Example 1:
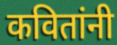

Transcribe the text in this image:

कवितांनी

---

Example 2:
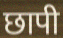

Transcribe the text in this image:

छापी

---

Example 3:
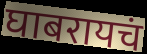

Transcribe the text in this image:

घाबरायचं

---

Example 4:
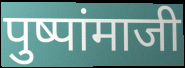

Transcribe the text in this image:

पुष्पांमाजी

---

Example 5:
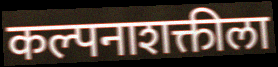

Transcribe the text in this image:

कल्पनाशक्तीला